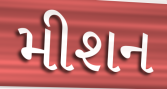
મીશન